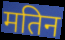
मतिन